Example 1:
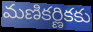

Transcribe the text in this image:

మణికర్ణికకు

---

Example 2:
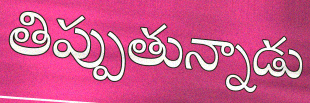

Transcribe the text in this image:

తిప్పుతున్నాడు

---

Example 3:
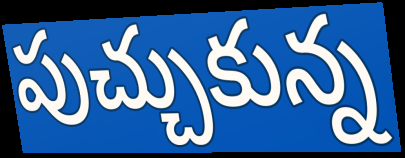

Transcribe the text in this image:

పుచ్చుకున్న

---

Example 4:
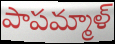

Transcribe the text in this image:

పాపమ్మాళ్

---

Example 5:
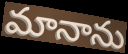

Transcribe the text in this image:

మానాను